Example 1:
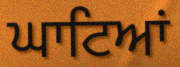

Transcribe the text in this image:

ਘਾਟਿਆਂ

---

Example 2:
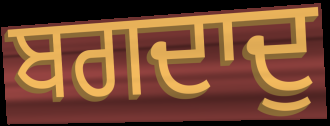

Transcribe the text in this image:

ਬਗਦਾਦੁ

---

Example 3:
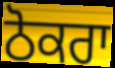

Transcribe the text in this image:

ਠੋਕਰਾ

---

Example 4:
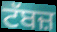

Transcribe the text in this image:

ਟੱਬਜ਼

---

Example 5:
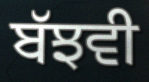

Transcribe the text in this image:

ਬੱਝਵੀ